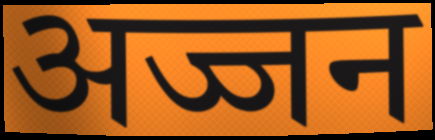
अज्जन